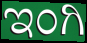
ಇಂಗಿ